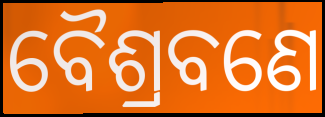
ବୈଶ୍ରବଣେ